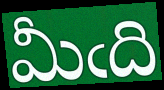
మీఁది